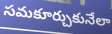
సమకూర్చుకునేలా